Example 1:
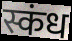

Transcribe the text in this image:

स्कंध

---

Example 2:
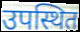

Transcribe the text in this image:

उपस्थित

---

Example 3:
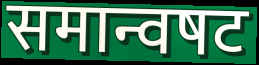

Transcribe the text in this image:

समान्वषट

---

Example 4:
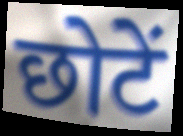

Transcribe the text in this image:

छोटें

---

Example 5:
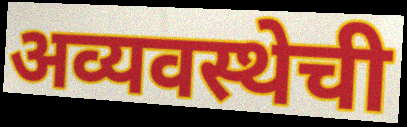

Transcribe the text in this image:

अव्यवस्थेची